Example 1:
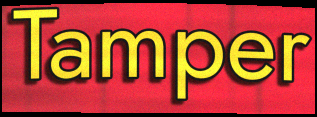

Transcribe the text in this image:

Tamper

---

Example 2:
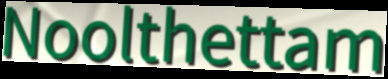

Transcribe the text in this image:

Noolthettam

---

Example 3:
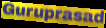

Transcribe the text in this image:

Guruprasad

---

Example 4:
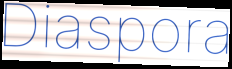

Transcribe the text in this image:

Diaspora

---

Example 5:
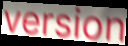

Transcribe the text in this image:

version